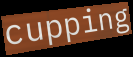
cupping